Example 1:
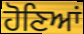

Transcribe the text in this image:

ਹੋਣਿਆਂ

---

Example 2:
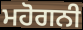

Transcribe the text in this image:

ਮਹੋਗਨੀ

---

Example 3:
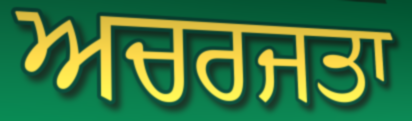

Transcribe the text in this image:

ਅਚਰਜਤਾ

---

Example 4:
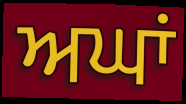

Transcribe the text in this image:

ਅਘਾਂ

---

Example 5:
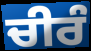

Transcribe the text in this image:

ਚੀਰੰ